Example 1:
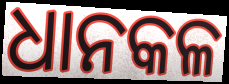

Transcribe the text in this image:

ଧାନକଳ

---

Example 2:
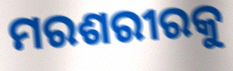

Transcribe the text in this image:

ମରଶରୀରକୁ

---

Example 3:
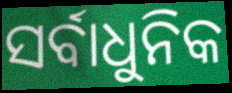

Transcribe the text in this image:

ସର୍ବାଧୁନିକ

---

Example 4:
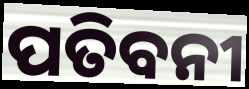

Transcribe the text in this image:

ପତିବନୀ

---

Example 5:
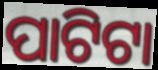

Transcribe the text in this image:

ପାଟିଟା